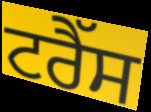
ਟਰੈੱਸ